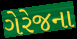
ગેરેજના